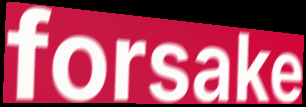
forsake